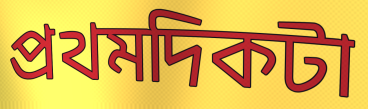
প্রথমদিকটা